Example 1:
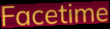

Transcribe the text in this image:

Facetime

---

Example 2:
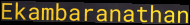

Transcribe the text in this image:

Ekambaranathan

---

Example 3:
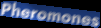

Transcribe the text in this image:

Pheromones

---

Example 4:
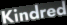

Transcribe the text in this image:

Kindred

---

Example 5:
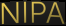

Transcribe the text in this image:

NIPA